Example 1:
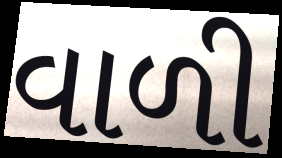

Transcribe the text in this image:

વાળી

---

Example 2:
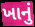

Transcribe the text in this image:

ખાનું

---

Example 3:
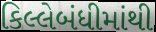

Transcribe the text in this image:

કિલ્લેબંધીમાંથી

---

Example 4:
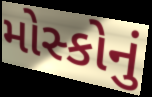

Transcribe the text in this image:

મોસ્કોનું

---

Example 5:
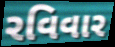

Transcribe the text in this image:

રવિવાર